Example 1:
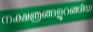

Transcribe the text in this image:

നക്ഷത്രങ്ങളുറങ്ങിയ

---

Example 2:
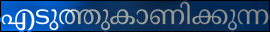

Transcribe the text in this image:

എടുത്തുകാണിക്കുന്ന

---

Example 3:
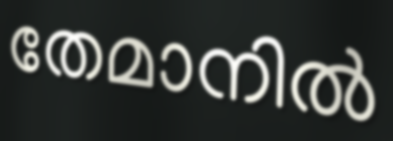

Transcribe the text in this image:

തേമാനിൽ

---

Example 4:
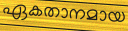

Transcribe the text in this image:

ഏകതാനമായ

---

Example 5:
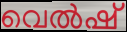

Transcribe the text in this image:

വെൽഷ്